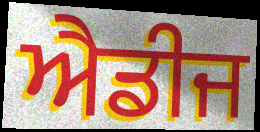
ਐਡੀਜ